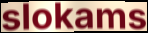
slokams